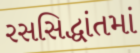
રસસિદ્ધાંતમાં